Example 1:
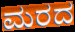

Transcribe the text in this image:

ಮರದ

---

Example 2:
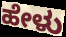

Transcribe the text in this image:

ಹೇಳು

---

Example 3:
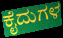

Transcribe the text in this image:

ಕೈದುಗಳ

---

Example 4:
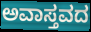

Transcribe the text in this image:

ಅವಾಸ್ತವದ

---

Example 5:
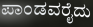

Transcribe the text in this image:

ಪಾಂಡವರೈದು